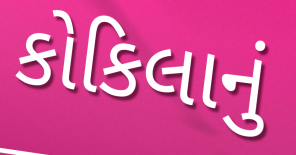
કોકિલાનું